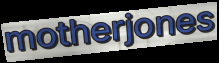
motherjones